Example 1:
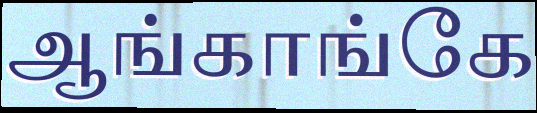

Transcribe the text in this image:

ஆங்காங்கே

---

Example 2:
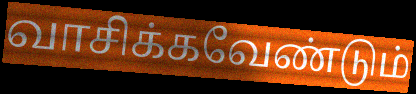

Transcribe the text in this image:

வாசிக்கவேண்டும்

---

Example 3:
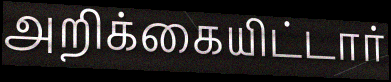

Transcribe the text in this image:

அறிக்கையிட்டார்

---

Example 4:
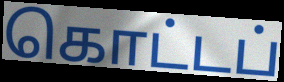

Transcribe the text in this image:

கொட்டப்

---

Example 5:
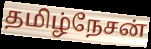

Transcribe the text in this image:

தமிழ்நேசன்